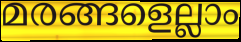
മരങ്ങളെല്ലാം